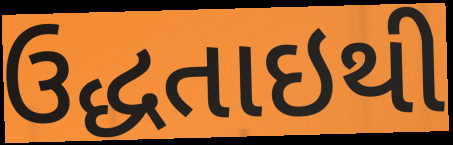
ઉદ્ધતાઇથી